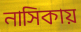
নাসিকায়